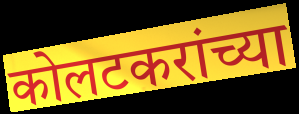
कोलटकरांच्या